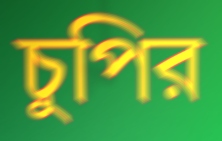
চুপির